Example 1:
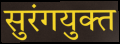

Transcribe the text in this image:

सुरंगयुक्त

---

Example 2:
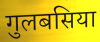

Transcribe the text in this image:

गुलबसिया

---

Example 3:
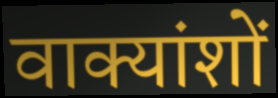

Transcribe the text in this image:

वाक्यांशों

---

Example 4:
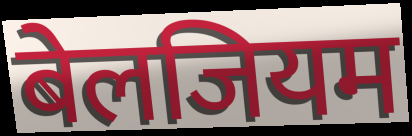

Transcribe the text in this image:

बेलजियम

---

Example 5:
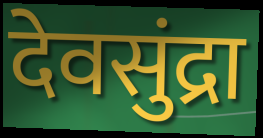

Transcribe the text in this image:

देवसुंद्रा